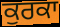
ਕੁਰਕਾ